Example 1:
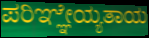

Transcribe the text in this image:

ಪರಿಞ್ಞೇಯ್ಯತಾಯ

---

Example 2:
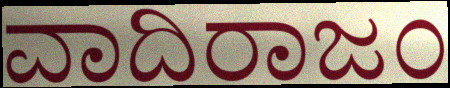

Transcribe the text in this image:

ವಾದಿರಾಜಂ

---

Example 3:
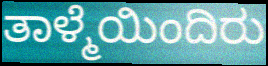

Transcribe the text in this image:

ತಾಳ್ಮೆಯಿಂದಿರು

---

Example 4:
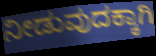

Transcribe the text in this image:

ನೀಡುವುದಕ್ಕಾಗಿ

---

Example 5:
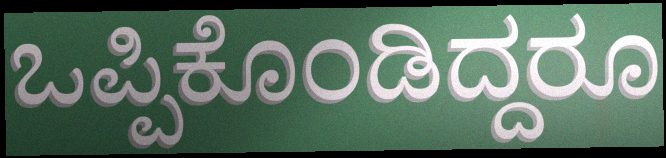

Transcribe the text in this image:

ಒಪ್ಪಿಕೊಂಡಿದ್ದರೂ